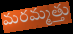
మరమ్మత్తు